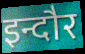
इन्दौर